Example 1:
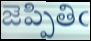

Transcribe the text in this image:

జెప్పితిఁ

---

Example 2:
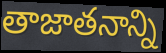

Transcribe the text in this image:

తాజాతనాన్ని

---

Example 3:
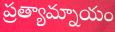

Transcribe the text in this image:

ప్రత్యామ్నాయం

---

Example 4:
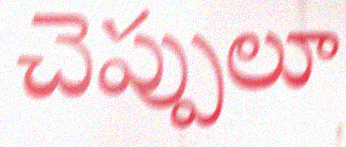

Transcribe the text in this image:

చెప్పులూ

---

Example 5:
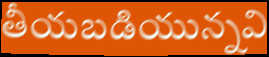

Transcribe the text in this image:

తీయబడియున్నవి